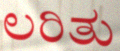
ಲರಿತು